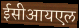
ईसीआयएल